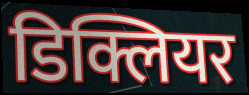
डिक्लियर